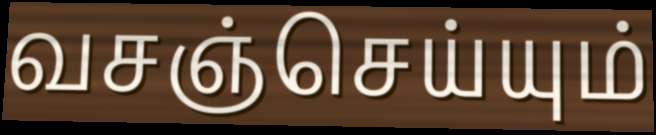
வசஞ்செய்யும்